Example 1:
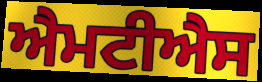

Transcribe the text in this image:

ਐਮਟੀਐਸ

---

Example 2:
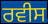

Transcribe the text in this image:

ਰਵੀਸ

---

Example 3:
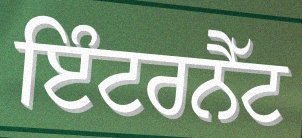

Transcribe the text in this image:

ਇੰਟਰਨੈੱਟ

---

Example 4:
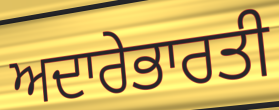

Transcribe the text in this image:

ਅਦਾਰੇਭਾਰਤੀ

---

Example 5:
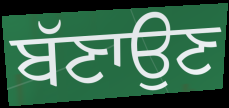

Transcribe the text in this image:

ਬੱਣਾਉਣ